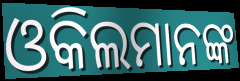
ଓକିଲମାନଙ୍କ